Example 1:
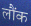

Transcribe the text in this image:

लौंक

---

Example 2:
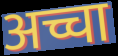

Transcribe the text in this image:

अच्चा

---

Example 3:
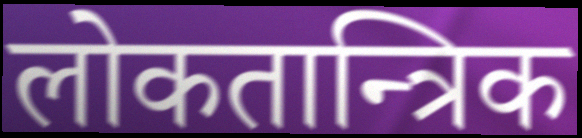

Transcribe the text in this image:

लोकतान्त्रिक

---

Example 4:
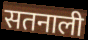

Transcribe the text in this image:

सतनाली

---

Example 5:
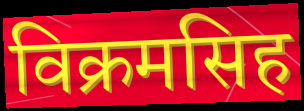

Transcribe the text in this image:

विक्रमसिह